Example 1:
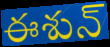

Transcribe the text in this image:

ఈశున్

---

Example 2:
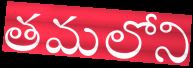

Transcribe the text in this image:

తమలోని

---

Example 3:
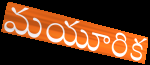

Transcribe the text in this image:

మయూరిక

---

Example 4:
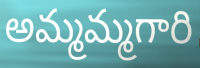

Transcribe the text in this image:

అమ్మమ్మగారి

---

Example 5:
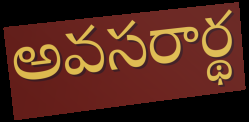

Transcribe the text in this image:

అవసరార్థ